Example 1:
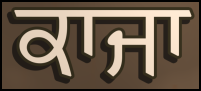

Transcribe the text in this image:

ਕਾਜਾ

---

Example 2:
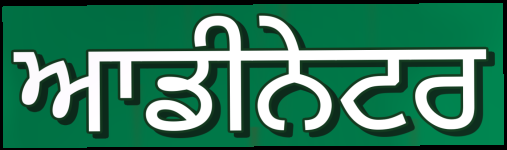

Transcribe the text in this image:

ਆਡੀਨੇਟਰ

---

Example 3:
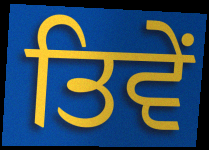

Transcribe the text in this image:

ਤਿਵੇਂ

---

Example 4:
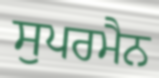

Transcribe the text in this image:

ਸੁਪਰਮੈਨ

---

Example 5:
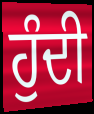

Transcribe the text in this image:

ਹੁੰਦੀ